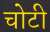
चोटी